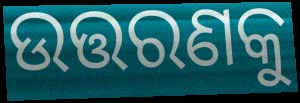
ଉତ୍ତରଣକୁ